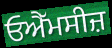
ਓਐੱਮਸੀਜ਼